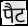
पैट